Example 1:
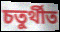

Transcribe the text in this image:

চতুৰ্থীত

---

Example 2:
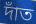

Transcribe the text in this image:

দাঁত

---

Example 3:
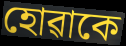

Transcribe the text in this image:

হোৱাকে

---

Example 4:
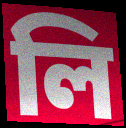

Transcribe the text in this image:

লি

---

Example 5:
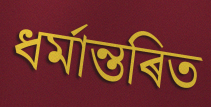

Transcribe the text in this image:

ধৰ্মান্তৰিত